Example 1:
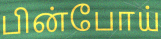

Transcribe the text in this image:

பின்போய்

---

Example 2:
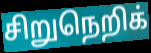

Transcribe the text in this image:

சிறுநெறிக்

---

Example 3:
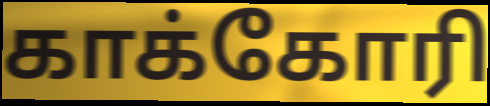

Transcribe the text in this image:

காக்கோரி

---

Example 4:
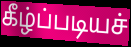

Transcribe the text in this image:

கீழ்ப்படியச்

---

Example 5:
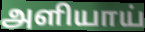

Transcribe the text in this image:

அளியாய்